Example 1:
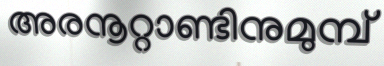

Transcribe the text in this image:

അരനൂറ്റാണ്ടിനുമുമ്പ്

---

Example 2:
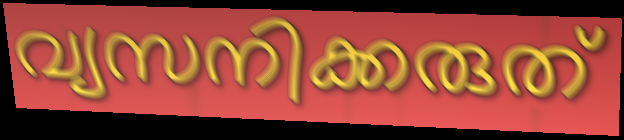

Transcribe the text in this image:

വ്യസനിക്കരുത്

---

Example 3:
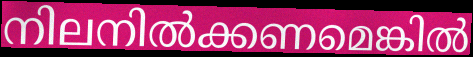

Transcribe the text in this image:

നിലനിൽക്കണമെങ്കിൽ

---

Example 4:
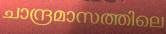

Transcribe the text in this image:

ചാന്ദ്രമാസത്തിലെ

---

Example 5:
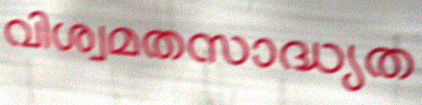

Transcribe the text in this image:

വിശ്വമതസാദ്ധ്യത